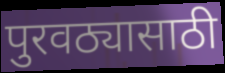
पुरवठ्यासाठी